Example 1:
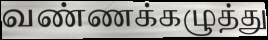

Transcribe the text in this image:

வண்ணக்கழுத்து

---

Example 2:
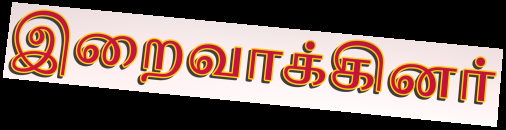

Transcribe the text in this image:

இறைவாக்கினர்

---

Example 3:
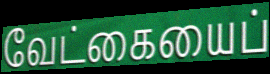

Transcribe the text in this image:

வேட்கையைப்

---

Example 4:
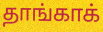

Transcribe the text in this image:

தாங்காக்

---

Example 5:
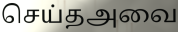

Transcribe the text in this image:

செய்தஅவை